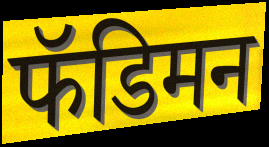
फॅडिमन